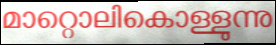
മാറ്റൊലികൊള്ളുന്നു